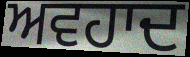
ਅਵਹਾਦ